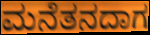
ಮನೆತನದಾಗ